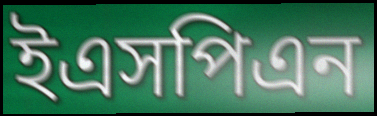
ইএসপিএন